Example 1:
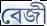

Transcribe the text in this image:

বেজী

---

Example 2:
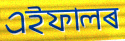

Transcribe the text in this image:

এইফালৰ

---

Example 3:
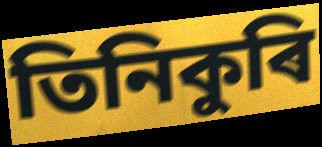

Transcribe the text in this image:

তিনিকুৰি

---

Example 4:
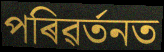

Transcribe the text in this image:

পৰিৱৰ্তনত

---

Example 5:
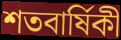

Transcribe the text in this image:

শতবাৰ্ষিকী